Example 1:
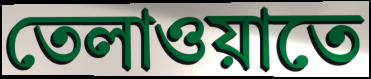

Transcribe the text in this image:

তেলাওয়াতে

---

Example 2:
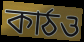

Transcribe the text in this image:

কাঠও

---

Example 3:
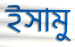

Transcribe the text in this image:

ইসামু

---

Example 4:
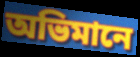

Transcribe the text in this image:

অভিমানে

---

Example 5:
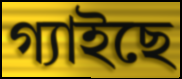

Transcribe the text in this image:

গ্যাইছে